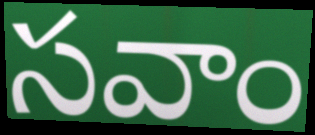
సవాం